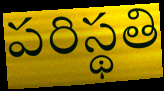
పరిస్థతి